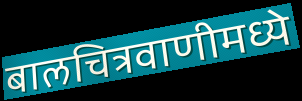
बालचित्रवाणीमध्ये